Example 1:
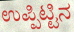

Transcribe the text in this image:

ಉಪ್ಪಿಟ್ಟಿನ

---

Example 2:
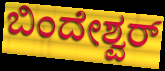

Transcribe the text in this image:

ಬಿಂದೇಶ್ವರ್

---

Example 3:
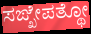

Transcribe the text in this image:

ಸಙ್ಖೇಪತ್ಥೋ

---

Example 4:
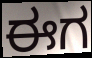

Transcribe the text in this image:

ಈಗ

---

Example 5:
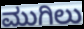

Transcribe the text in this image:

ಮುಗಿಲು